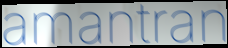
amantran